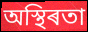
অস্থিৰতা